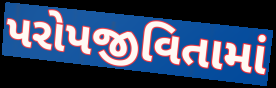
પરોપજીવિતામાં